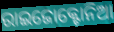
ରାଇଜୋକ୍ଟୋନିଆ